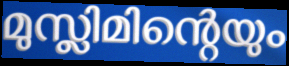
മുസ്ലിമിന്റെയും